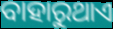
ବାହାରୁଥାଏ